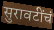
सुरावटींचं